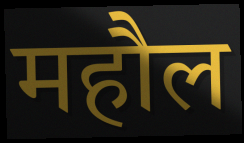
महौल